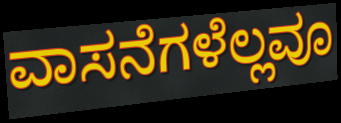
ವಾಸನೆಗಳೆಲ್ಲವೂ